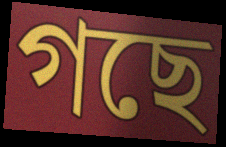
গছে